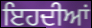
ਇਹਦੀਆਂ